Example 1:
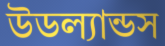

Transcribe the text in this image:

উডল্যান্ডস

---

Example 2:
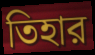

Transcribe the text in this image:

তিহার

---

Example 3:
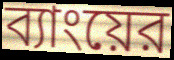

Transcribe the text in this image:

ব্যাংয়ের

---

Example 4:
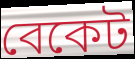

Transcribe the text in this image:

বেকেট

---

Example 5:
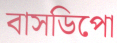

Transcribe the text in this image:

বাসডিপো